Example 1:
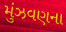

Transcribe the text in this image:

મુંઝવણના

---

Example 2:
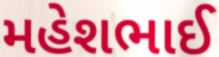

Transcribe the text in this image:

મહેશભાઈ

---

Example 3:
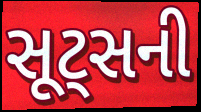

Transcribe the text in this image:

સૂટ્સની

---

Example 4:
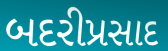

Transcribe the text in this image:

બદરીપ્રસાદ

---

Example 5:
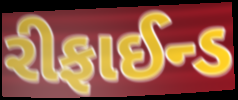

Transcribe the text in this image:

રીફાઈન્ડ